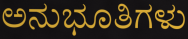
ಅನುಭೂತಿಗಳು